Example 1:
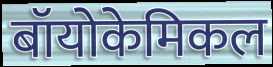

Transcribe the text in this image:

बॉयोकेमिकल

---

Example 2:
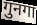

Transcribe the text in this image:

गुनगा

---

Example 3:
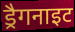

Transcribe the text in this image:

ड्रैगनाइट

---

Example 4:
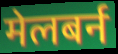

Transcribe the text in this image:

मेलबर्न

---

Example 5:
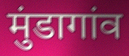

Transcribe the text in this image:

मुंडागांव